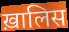
ख़ालिस